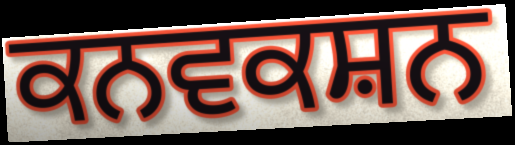
ਕਨਵਕਸ਼ਨ